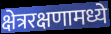
क्षेत्ररक्षणामध्ये